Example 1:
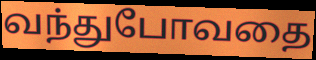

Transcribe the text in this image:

வந்துபோவதை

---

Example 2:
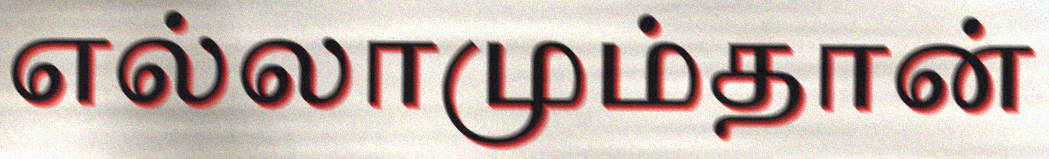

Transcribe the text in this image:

எல்லாமும்தான்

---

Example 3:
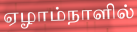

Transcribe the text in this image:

ஏழாம்நாளில்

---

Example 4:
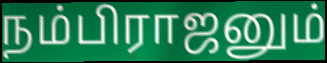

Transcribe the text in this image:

நம்பிராஜனும்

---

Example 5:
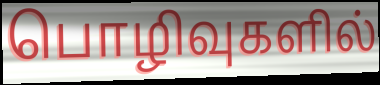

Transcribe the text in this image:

பொழிவுகளில்